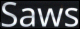
Saws